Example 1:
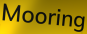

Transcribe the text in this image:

Mooring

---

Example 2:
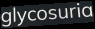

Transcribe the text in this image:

glycosuria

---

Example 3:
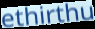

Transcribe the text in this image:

ethirthu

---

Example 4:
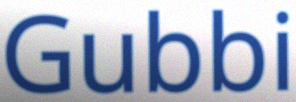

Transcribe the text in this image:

Gubbi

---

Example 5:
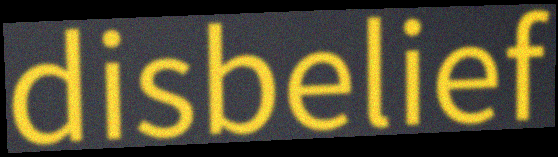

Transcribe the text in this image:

disbelief